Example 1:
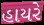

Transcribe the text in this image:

હાયરે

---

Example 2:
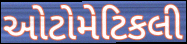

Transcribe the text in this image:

ઓટોમેટિકલી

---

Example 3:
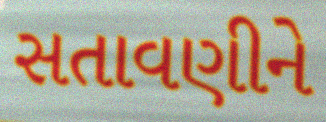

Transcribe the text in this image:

સતાવણીને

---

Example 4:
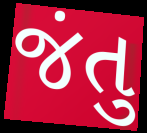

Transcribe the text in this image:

જંતુ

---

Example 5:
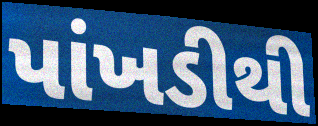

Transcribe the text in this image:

પાંખડીથી